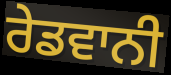
ਰੇਡਵਾਨੀ